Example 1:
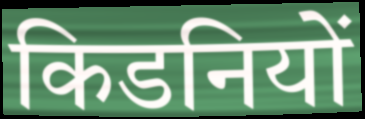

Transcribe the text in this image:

किडनियों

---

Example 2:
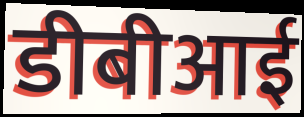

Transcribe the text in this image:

डीबीआई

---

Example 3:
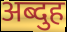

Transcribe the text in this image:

अब्दुह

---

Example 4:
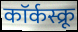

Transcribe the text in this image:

कॉर्कस्क्रू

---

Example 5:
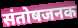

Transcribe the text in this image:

संतोषजनक